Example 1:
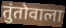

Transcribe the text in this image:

तुंतोवाला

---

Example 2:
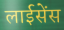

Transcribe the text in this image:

लाईसेंस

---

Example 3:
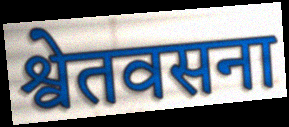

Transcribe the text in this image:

श्वेतवसना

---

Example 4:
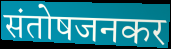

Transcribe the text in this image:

संतोषजनकर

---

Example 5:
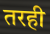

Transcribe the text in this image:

तरही